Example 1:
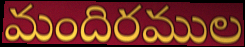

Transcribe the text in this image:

మందిరముల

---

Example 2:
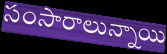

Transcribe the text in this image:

సంసారాలున్నాయి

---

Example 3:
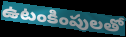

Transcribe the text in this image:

ఉటంకింపులతో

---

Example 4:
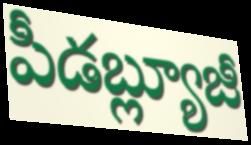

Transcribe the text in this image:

పీడబ్ల్యూజీ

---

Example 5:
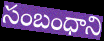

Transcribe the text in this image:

సంబంధాని